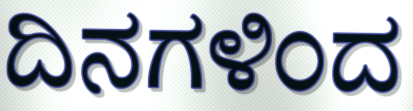
ದಿನಗಳಿಂದ